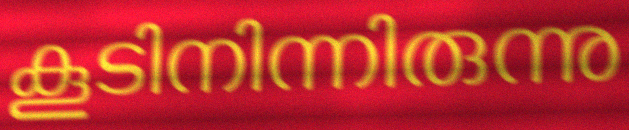
കൂടിനിന്നിരുന്നു